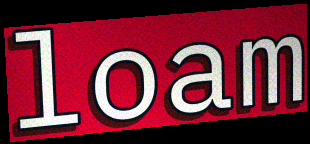
loam